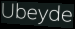
Ubeyde